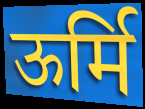
ऊर्मि